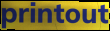
printout